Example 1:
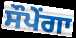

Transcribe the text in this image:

ਸੌਪੇਂਗਾ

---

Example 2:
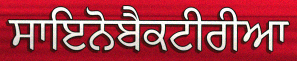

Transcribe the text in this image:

ਸਾਇਨੋਬੈਕਟੀਰੀਆ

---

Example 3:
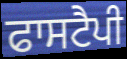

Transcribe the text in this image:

ਫਾਸਟੈਪੀ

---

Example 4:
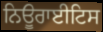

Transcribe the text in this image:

ਨਿਊਰਾਈਟਿਸ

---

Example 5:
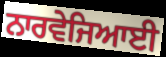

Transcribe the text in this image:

ਨਾਰਵੇਜਿਆਈ